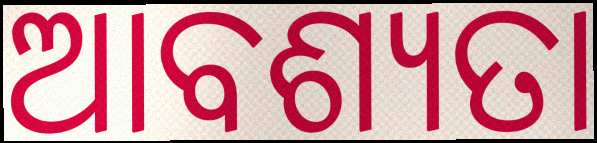
ଆବଶ୍ୟତା